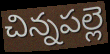
చిన్నపల్లె